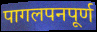
पागलपनपूर्ण